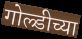
गोल्डीच्या